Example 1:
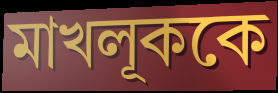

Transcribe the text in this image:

মাখলূককে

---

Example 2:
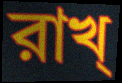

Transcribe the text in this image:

রাখ্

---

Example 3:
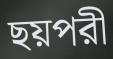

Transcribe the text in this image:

ছয়পরী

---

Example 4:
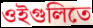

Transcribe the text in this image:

ওইগুলিতে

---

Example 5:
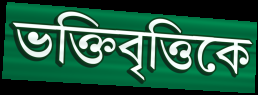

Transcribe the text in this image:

ভক্তিবৃত্তিকে